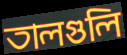
তালগুলি